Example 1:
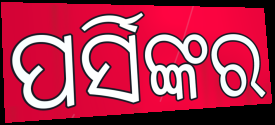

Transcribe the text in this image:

ପର୍ସିଙ୍କର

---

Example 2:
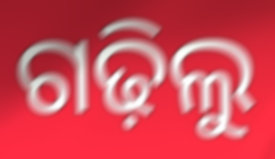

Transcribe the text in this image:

ଗଢ଼ିଲୁ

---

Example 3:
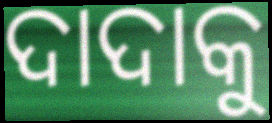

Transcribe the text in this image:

ଦାଦାକୁ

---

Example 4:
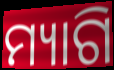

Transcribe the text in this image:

ମ୍ୟାଗି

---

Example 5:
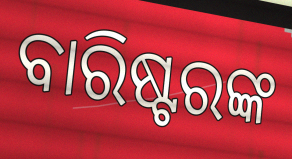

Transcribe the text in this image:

ବାରିଷ୍ଟରଙ୍କ